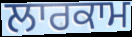
ਲਾਰਕਾਮ